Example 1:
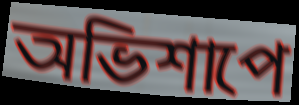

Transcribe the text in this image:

অভিশাপে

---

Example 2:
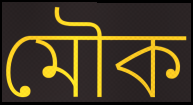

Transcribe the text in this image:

মৌক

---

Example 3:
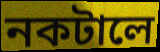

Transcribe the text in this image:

নকটালে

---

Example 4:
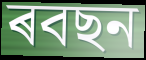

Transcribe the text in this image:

ৰবছন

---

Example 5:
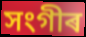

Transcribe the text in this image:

সংগীৰ